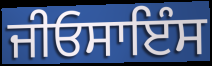
ਜੀਓਸਾਇੰਸ